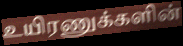
உயிரணுக்களின்